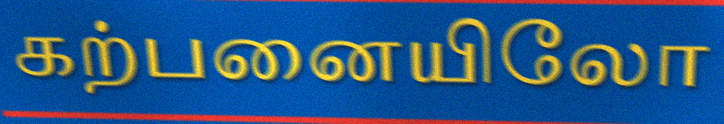
கற்பனையிலோ